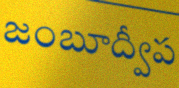
జంబూద్వీప